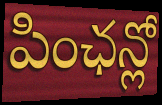
పింఛన్లో